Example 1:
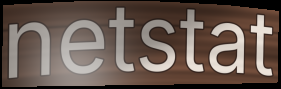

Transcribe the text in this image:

netstat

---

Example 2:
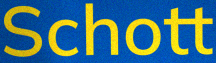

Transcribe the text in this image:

Schott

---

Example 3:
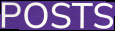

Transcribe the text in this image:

POSTS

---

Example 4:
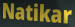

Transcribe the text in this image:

Natikar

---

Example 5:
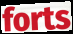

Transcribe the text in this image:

forts